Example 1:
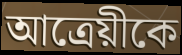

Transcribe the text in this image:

আত্রেয়ীকে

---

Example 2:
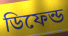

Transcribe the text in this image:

ডিফেন্ড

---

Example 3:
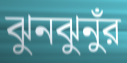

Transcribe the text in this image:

ঝুনঝুনুঁর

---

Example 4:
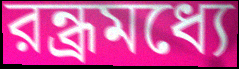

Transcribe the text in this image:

রন্ধ্রমধ্যে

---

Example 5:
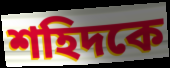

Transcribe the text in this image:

শহিদকে